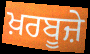
ਖ਼ਰਬੂਜ਼ੇ